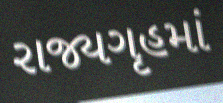
રાજ્યગૃહમાં